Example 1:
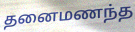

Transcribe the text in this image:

தனைமணந்த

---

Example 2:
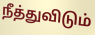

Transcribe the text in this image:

நீத்துவிடும்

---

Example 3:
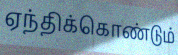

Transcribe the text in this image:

ஏந்திக்கொண்டும்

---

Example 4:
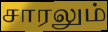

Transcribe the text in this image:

சாரலும்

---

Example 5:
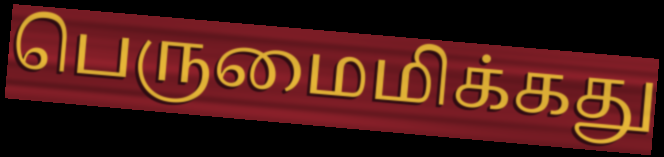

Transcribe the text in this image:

பெருமைமிக்கது